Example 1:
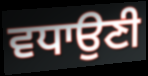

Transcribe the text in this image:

ਵਧਾਉਣੀ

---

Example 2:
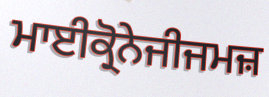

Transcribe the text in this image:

ਮਾਈਕ੍ਰੋਨੇਜੀਜਮਜ਼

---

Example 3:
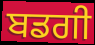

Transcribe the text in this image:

ਬਡਗੀ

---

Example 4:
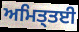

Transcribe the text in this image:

ਅਮਿਤ੍ਤਈ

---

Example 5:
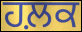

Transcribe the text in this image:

ਹਲ਼ਕ